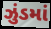
ઝુંડમાં